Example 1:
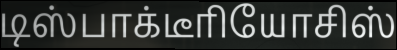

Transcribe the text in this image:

டிஸ்பாக்டீரியோசிஸ்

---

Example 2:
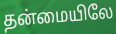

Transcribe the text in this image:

தன்மையிலே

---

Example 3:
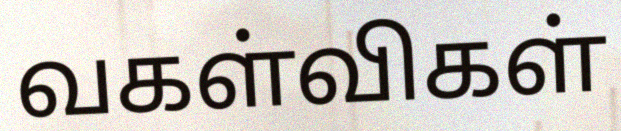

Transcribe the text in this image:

வகள்விகள்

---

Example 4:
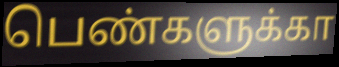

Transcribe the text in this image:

பெண்களுக்கா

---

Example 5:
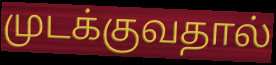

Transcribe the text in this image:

முடக்குவதால்